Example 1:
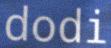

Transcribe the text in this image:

dodi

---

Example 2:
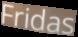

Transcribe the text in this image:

Fridas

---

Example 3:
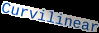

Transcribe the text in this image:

Curvilinear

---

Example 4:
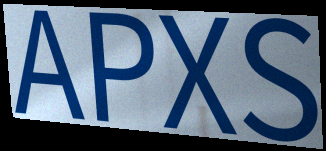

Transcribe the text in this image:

APXS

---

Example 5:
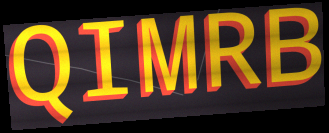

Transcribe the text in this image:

QIMRB